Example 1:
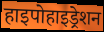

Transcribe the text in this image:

हाइपोहाइड्रेशन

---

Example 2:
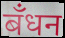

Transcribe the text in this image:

बँधन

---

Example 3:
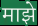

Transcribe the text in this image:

माझे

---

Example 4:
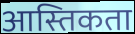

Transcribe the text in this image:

आस्तिकता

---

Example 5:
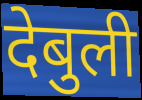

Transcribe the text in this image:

देबुली